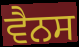
ਵੈਨਸ